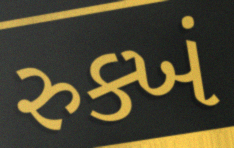
રુક્ખં